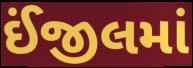
ઈંજીલમાં